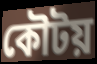
কৌটয়